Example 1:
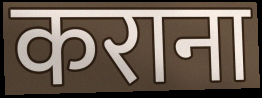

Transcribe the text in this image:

कराना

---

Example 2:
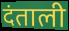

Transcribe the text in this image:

दंताली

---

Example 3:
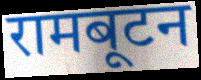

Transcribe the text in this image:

रामबूटन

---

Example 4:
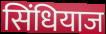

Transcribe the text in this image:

सिंधियाज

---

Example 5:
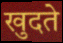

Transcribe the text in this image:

खुदते